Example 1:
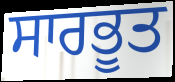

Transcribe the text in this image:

ਸਾਰਭੂਤ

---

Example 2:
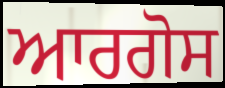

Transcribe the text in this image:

ਆਰਗੋਸ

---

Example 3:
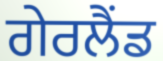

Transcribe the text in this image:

ਗੇਰਲੈਂਡ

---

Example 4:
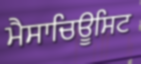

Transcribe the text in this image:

ਮੈਸਾਚਿਊਸਿਟ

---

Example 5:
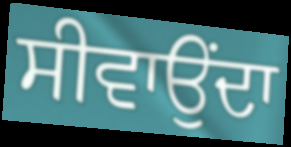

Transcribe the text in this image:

ਸੀਵਾਉਂਦਾ